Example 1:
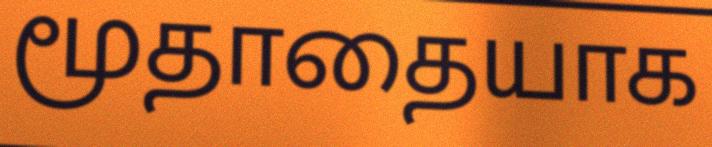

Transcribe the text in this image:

மூதாதையாக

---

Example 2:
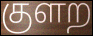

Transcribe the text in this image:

குளற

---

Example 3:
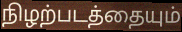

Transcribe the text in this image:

நிழற்படத்தையும்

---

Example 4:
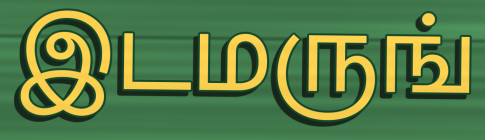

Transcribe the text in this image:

இடமருங்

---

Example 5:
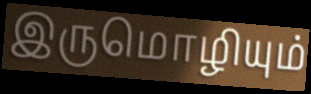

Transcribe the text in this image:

இருமொழியும்